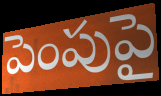
పెంపుపై